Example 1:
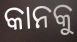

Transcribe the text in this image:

କାନକୁ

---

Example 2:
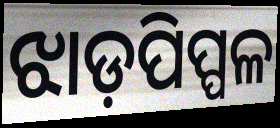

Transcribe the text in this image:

ଝାଡ଼ପିପ୍ପଳ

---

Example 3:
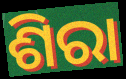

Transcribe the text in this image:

ଶିରା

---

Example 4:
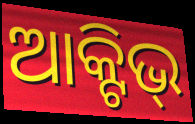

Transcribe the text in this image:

ଆକ୍ଟିଭ୍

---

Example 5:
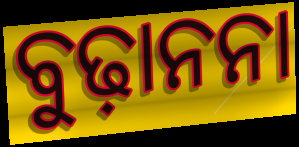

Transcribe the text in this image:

ବୁଢ଼ାନନା